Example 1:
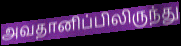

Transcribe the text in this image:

அவதானிப்பிலிருந்து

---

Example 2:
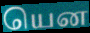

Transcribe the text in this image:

யென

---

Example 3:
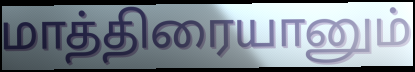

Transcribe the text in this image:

மாத்திரையானும்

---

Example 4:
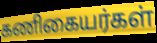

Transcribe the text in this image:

கணிகையர்கள்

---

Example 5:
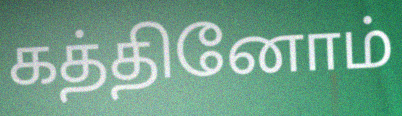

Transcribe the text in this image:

கத்தினோம்